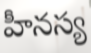
హీనస్య